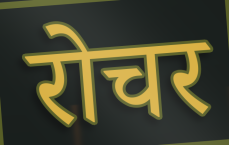
रोचर